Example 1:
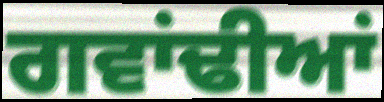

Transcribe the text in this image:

ਗਵਾਂਢੀਆਂ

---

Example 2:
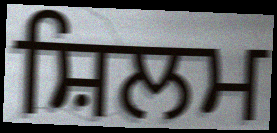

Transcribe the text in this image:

ਸ਼ਿਲਮ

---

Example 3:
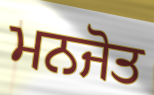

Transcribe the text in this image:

ਮਨਜੋਤ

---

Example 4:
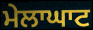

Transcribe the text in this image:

ਮੇਲਾਘਾਟ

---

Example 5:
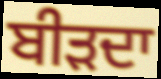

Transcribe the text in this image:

ਬੀੜਦਾ